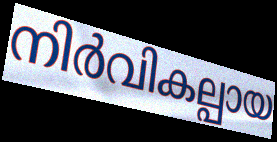
നിർവികല്പായ